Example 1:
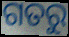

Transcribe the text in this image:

ଗତରୁ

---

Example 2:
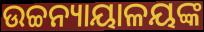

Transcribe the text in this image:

ଉଚ୍ଚନ୍ୟାୟାଳୟଙ୍କ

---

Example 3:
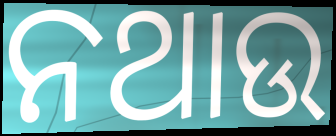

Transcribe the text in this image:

ନଥାଉ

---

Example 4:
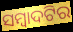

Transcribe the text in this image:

ସମ୍ବାଦଟିର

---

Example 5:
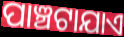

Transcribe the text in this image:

ପାଞ୍ଚଟାଯାଏ